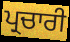
ਪ੍ਰਚਾਰੀ